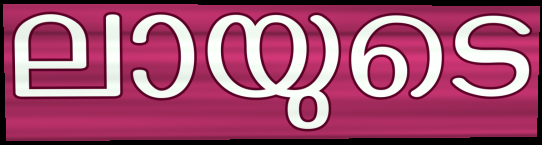
ലായുടെ